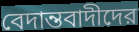
বেদান্তবাদীদের